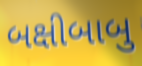
બક્ષીબાબુ